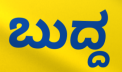
ಬುದ್ದ